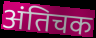
अंतिचक